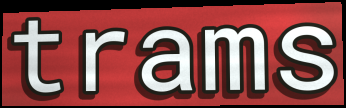
trams